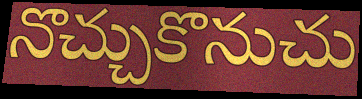
నొచ్చుకొనుచు